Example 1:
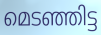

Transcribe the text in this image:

മെടഞ്ഞിട്ട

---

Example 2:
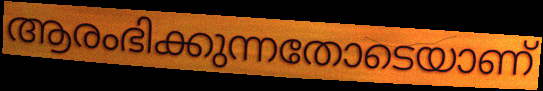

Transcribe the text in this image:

ആരംഭിക്കുന്നതോടെയാണ്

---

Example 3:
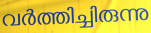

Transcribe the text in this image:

വർത്തിച്ചിരുന്നു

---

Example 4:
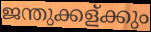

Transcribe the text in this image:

ജന്തുക്കള്ക്കും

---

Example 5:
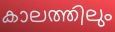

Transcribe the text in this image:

കാലത്തിലും